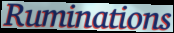
Ruminations